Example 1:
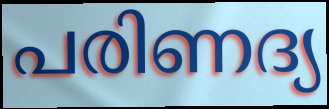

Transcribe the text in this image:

പരിണദ്യ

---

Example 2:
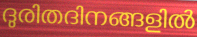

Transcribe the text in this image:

ദുരിതദിനങ്ങളിൽ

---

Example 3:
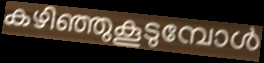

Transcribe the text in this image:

കഴിഞ്ഞുകൂടുമ്പോൾ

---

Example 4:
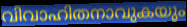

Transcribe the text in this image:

വിവാഹിതനാവുകയും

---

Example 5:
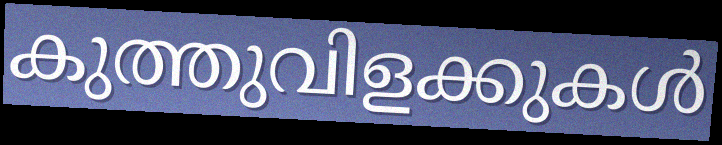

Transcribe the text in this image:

കുത്തുവിളക്കുകൾ